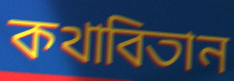
কথাবিতান